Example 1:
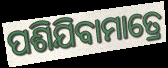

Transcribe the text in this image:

ପଶିଯିବାମାତ୍ରେ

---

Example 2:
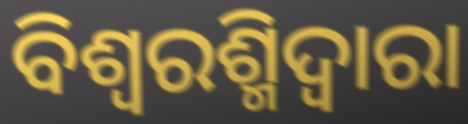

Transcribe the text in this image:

ବିଶ୍ୱରଶ୍ମିଦ୍ୱାରା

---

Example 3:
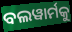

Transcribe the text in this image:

ବଲୱାର୍ମକୁ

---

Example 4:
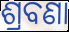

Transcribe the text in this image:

ଶ୍ରବଣା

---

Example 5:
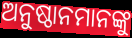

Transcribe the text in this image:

ଅନୁଷ୍ଠାନମାନଙ୍କୁ